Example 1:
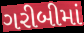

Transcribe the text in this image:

ગરીબીમાં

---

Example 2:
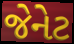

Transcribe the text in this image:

જેનેટ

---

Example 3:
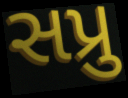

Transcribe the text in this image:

સપ્રુ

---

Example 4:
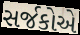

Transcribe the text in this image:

સર્જકોએ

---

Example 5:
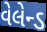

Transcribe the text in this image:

વેલેન્ડ